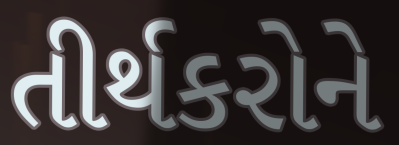
તીર્થકરોને